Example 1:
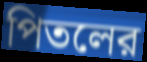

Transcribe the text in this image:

পিতলের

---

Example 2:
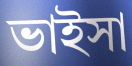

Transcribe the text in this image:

ভাইসা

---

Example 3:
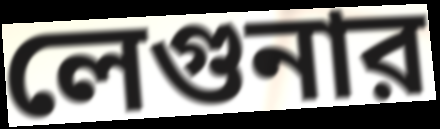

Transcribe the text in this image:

লেগুনার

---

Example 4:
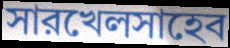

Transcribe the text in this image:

সারখেলসাহেব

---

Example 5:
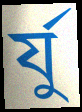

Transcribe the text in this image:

র্যু